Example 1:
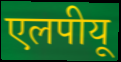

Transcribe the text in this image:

एलपीयू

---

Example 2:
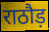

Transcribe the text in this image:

राठौड़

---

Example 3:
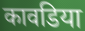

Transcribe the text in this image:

कावडिया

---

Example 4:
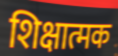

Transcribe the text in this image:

शिक्षात्मक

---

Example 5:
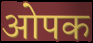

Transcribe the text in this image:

ओपक